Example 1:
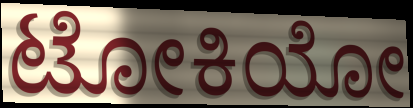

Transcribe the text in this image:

ಟೋಕಿಯೋ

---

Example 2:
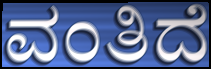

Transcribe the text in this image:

ವಂತಿದೆ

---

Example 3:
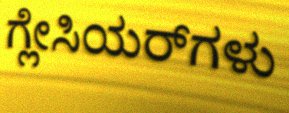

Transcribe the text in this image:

ಗ್ಲೇಸಿಯರ್‌ಗಳು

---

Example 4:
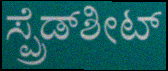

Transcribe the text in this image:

ಸ್ಪ್ರೆಡ್‌ಶೀಟ್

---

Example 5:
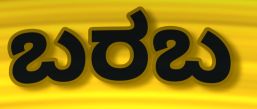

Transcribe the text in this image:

ಬರಬ